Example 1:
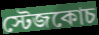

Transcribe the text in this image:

স্টেজকোচ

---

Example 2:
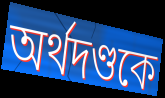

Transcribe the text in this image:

অর্থদণ্ডকে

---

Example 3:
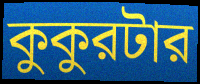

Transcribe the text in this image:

কুকুরটার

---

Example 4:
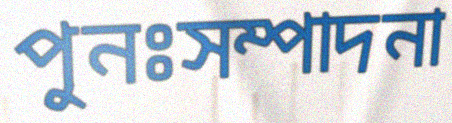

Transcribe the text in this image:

পুনঃসম্পাদনা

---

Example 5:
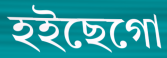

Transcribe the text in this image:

হইছেগো